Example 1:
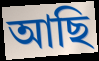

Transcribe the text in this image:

আছি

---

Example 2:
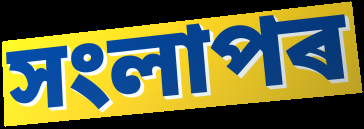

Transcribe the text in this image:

সংলাপৰ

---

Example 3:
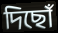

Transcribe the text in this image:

দিছোঁ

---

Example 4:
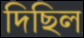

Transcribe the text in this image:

দিছিল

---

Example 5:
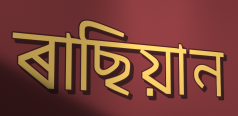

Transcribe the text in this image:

ৰাছিয়ান